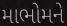
માભોમને